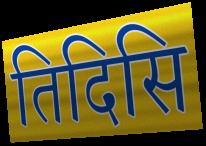
तिदिसि